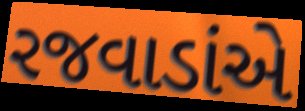
રજવાડાંએ